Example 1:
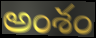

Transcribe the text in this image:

అంశం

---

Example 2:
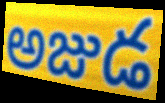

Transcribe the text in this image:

అజుడ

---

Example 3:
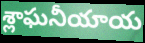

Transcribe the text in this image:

శ్లాఘనీయాయ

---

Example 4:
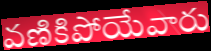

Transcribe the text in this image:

వణికిపోయేవారు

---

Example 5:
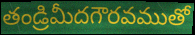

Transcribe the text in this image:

తండ్రిమీదగౌరవముతో